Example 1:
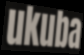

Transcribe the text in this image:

ukuba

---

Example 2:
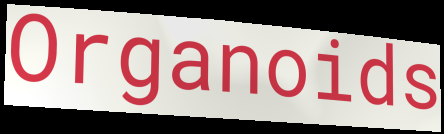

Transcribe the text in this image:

Organoids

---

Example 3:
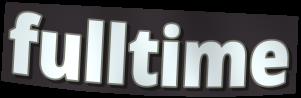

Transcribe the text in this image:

fulltime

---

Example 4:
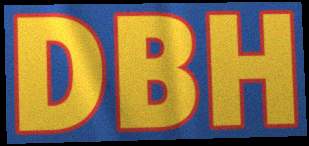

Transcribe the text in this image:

DBH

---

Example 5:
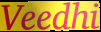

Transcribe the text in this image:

Veedhi